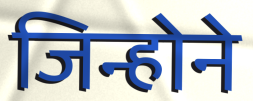
जिन्होने